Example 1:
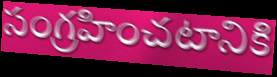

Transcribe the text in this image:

సంగ్రహించటానికి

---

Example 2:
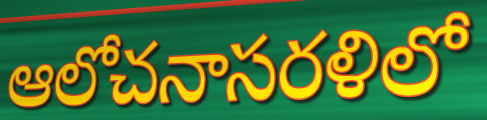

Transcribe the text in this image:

ఆలోచనాసరళిలో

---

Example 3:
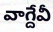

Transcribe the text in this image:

వాగ్దేవీ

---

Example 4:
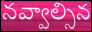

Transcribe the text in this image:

నవ్వాల్సిన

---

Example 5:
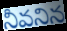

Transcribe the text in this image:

నీవనిన